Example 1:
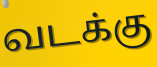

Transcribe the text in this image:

வடக்கு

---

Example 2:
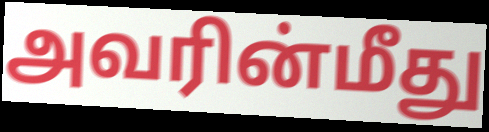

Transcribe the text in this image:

அவரின்மீது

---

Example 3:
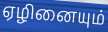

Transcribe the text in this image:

ஏழினையும்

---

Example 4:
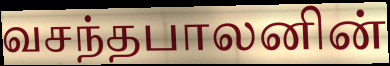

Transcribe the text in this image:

வசந்தபாலனின்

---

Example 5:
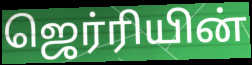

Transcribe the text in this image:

ஜெர்ரியின்